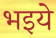
भइये